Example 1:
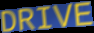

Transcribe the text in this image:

DRIVE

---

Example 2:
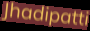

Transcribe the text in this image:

Jhadipatti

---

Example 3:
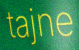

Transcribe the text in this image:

tajne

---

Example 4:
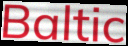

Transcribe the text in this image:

Baltic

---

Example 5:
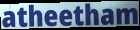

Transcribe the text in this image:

atheetham